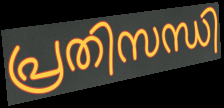
പ്രതിസന്ധി